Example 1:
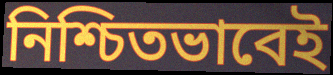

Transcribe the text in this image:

নিশ্চিতভাবেই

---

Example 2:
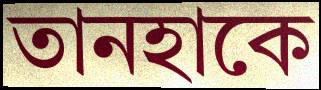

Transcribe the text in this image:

তানহাকে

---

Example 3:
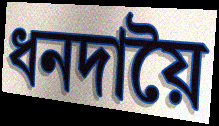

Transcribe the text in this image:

ধনদায়ৈ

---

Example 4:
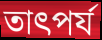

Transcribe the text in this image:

তাৎপর্য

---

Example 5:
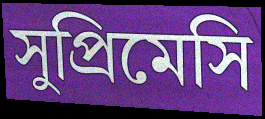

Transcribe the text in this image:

সুপ্রিমেসি